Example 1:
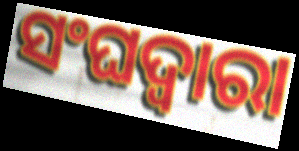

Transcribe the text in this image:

ସଂଘଦ୍ୱାରା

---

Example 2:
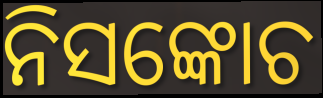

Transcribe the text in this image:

ନିସଙ୍କୋଚ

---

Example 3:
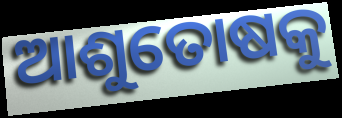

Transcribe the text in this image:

ଆଶୁତୋଷକୁ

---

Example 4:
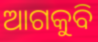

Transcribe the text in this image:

ଆଗକୁବି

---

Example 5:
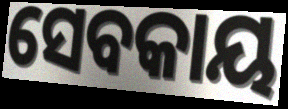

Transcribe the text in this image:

ସେବକାୟ